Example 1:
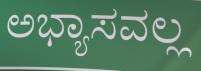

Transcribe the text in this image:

ಅಭ್ಯಾಸವಲ್ಲ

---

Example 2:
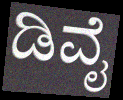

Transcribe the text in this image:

ಡಿವೈ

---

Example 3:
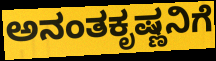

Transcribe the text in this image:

ಅನಂತಕೃಷ್ಣನಿಗೆ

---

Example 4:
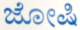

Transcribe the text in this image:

ಜೋಷಿ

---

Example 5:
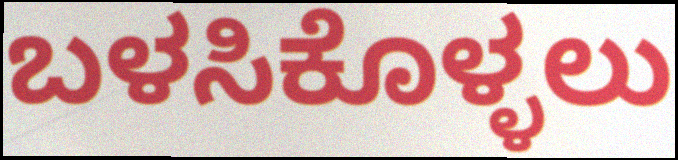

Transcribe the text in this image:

ಬಳಸಿಕೊಳ್ಳಲು